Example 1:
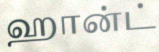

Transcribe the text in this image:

ஹான்ட்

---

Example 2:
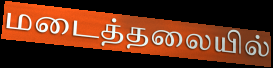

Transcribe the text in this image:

மடைத்தலையில்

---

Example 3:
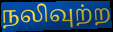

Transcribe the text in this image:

நலிவுற்ற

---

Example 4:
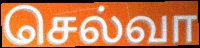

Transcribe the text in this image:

செல்வா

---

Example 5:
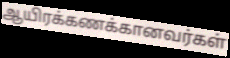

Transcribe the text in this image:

ஆயிரக்கணக்கானவர்கள்